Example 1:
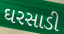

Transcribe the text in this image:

ઘરસાડી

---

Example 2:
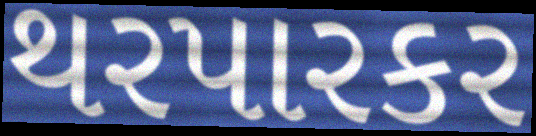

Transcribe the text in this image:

થરપારકર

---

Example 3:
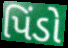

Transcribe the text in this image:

પિંડો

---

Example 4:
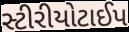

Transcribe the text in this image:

સ્ટીરીયોટાઈપ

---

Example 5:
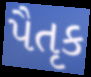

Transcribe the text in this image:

પૈતૃક